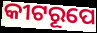
କୀଟରୂପେ